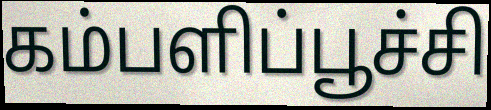
கம்பளிப்பூச்சி